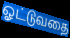
ஓட்டுவதை